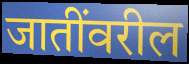
जातींवरील